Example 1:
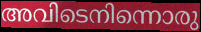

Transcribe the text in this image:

അവിടെനിന്നൊരു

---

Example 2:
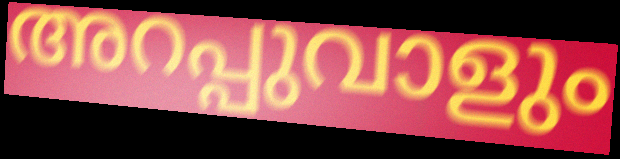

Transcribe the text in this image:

അറപ്പുവാളും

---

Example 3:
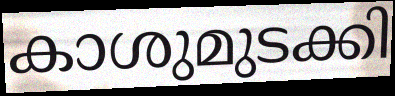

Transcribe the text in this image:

കാശുമുടക്കി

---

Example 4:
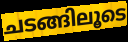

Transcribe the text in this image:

ചടങ്ങിലൂടെ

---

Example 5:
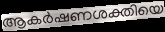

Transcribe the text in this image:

ആകർഷണശക്തിയെ